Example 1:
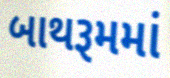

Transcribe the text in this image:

બાથરૂમમાં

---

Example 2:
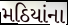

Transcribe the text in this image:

મઠિયાંના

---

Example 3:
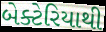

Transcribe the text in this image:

બેક્ટેરિયાથી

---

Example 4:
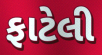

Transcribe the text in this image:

ફાટેલી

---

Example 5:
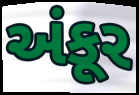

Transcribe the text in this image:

અંકૂર